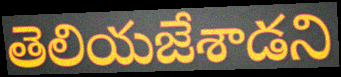
తెలియజేశాడని